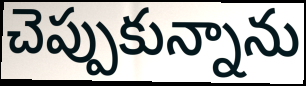
చెప్పుకున్నాను